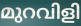
മുറവിളി